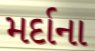
મર્દાના